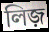
লিজ়